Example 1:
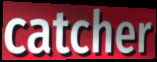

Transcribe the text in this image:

catcher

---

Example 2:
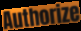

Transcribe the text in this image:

Authorize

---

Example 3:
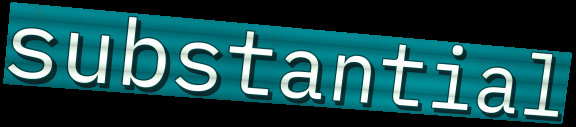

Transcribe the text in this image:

substantial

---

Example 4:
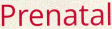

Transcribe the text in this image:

Prenatal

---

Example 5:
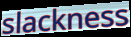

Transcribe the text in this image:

slackness